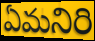
ఏమనిరి